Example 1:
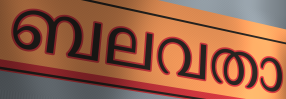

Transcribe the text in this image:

ബലവതാ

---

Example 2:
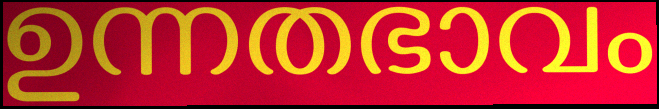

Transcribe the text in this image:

ഉന്നതഭാവം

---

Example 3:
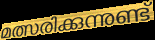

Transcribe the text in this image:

മത്സരിക്കുന്നുണ്ട്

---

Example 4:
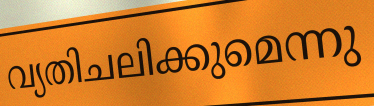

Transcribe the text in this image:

വ്യതിചലിക്കുമെന്നു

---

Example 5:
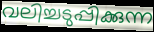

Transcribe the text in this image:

വലിച്ചടുപ്പിക്കുന്ന